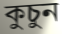
কুচুন